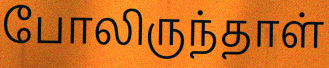
போலிருந்தாள்